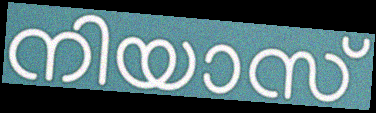
നിയാസ്